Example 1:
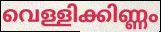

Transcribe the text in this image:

വെള്ളിക്കിണ്ണം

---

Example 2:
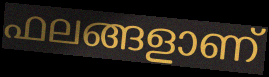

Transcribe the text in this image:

ഫലങ്ങളാണ്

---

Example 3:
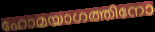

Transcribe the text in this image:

ഹോമയാഗത്തിനോ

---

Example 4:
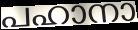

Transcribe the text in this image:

പഹാനാ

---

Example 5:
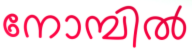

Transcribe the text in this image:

നോമ്പിൽ